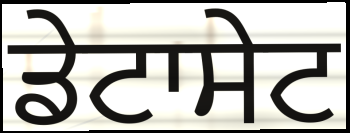
ਡੇਟਾਸੇਟ